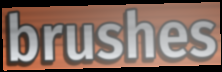
brushes